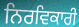
ਨਿਰਵਿਕਾਰੀ